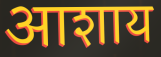
आशाय